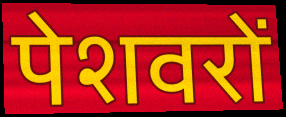
पेशवरों